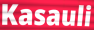
Kasauli